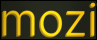
mozi